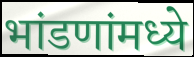
भांडणांमध्ये